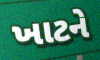
ખાટને